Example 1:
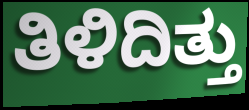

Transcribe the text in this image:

ತಿಳಿದಿತ್ತು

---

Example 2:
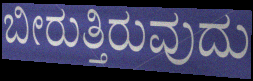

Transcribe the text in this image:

ಬೀರುತ್ತಿರುವುದು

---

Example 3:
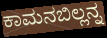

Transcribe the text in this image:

ಕಾಮನಬಿಲ್ಲನ್ನ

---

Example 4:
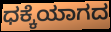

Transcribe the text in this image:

ಧಕ್ಕೆಯಾಗದ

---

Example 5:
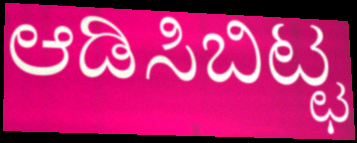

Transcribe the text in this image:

ಆಡಿಸಿಬಿಟ್ಟ